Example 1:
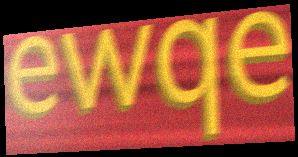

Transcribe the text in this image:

ewqe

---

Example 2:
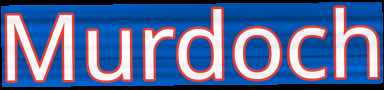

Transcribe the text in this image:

Murdoch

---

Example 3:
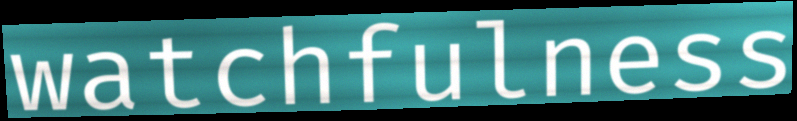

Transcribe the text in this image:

watchfulness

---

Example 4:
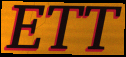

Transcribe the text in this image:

ETT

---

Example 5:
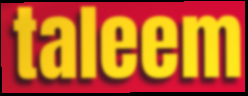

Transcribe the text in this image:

taleem